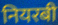
नियरबी